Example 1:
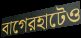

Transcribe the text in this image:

বাগেরহাটেও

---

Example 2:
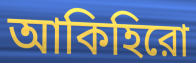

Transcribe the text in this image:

আকিহিরো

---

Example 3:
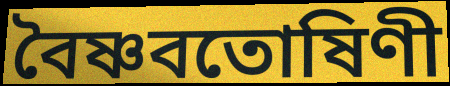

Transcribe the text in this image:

বৈষ্ণবতোষিণী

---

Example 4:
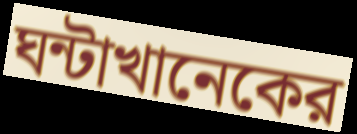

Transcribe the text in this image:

ঘন্টাখানেকের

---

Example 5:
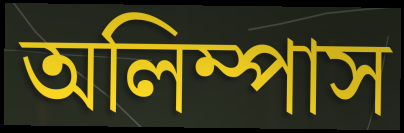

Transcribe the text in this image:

অলিম্পাস